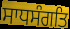
ਸਾਧਸੰਗਤਿ